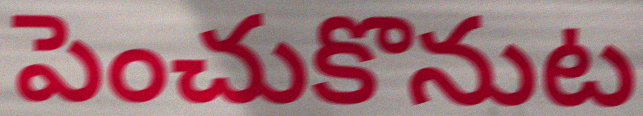
పెంచుకొనుట